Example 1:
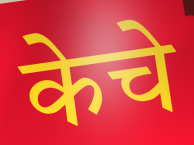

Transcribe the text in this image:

केचे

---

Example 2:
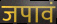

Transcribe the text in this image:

जपावं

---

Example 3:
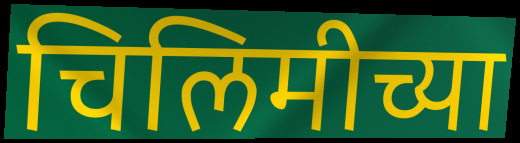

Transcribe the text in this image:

चिलिमीच्या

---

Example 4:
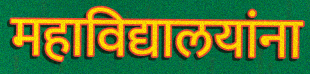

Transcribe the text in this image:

महाविद्यालयांना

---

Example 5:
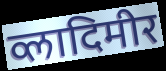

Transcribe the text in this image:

व्लादिमीर